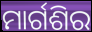
ମାର୍ଗଶିର